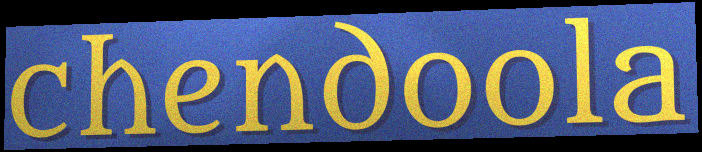
chendoola